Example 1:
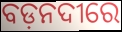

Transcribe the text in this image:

ବଡ଼ନଦୀରେ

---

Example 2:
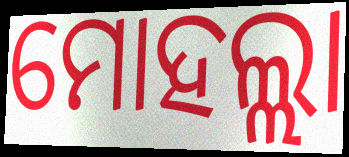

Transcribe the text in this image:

ମୋହଲ୍ଲା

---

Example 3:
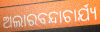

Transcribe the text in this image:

ଅଲାରବନ୍ଦାଚାର୍ଯ୍ୟ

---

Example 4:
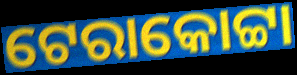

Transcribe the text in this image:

ଟେରାକୋଟ୍ଟା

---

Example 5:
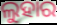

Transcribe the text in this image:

ଲୁହାର